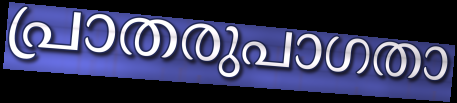
പ്രാതരുപാഗതാ